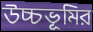
উচ্চভূমির